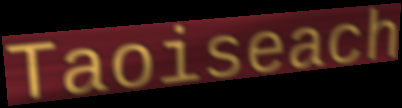
Taoiseach